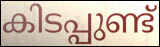
കിടപ്പുണ്ട്